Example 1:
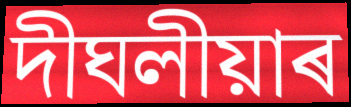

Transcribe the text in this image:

দীঘলীয়াৰ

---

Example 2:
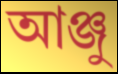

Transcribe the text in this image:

আঞ্জু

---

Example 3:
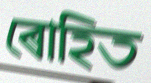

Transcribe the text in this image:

ৰোহিত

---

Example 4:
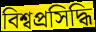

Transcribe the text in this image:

বিশ্বপ্ৰসিদ্ধি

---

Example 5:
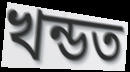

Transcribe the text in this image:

খন্ডত